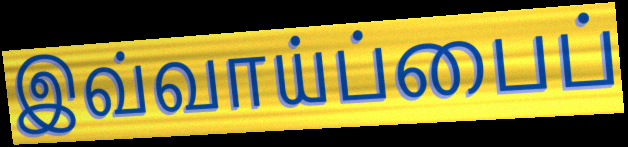
இவ்வாய்ப்பைப்